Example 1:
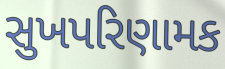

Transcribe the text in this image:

સુખપરિણામક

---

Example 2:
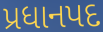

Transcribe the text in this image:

પ્રધાનપદ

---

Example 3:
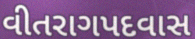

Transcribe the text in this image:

વીતરાગપદવાસ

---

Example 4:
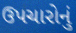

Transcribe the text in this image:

ઉપચારોનું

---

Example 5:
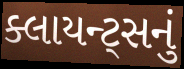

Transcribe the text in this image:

ક્લાયન્ટ્સનું